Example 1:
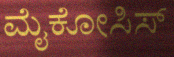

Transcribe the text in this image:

ಮೈಕೋಸಿಸ್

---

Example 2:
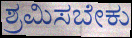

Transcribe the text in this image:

ಶ್ರಮಿಸಬೇಕು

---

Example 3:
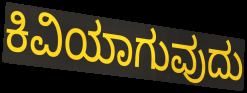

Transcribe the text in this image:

ಕಿವಿಯಾಗುವುದು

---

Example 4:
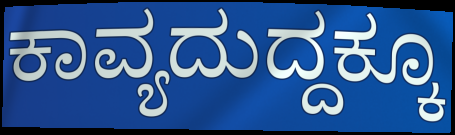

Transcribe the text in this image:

ಕಾವ್ಯದುದ್ದಕ್ಕೂ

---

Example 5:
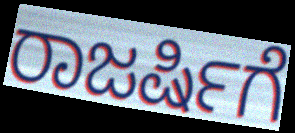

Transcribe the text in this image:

ರಾಜರ್ಷಿಗೆ